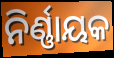
ନିର୍ଣ୍ଣାୟକ